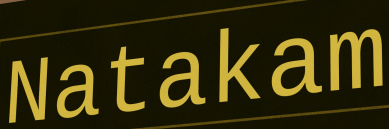
Natakam